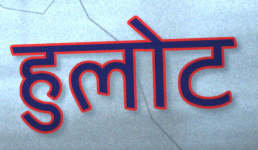
हुलोट